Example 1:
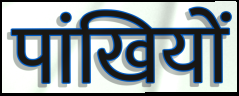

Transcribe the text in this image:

पांखियों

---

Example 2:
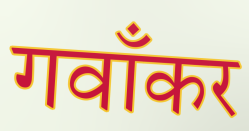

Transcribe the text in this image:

गवाँकर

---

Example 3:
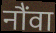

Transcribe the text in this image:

नौंवा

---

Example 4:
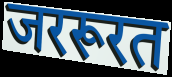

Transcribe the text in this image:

जररूरत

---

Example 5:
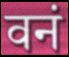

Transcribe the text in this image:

वनं